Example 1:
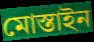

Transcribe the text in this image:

মোস্তাইন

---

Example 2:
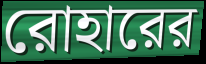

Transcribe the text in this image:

রোহারের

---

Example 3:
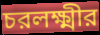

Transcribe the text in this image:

চরলক্ষ্মীর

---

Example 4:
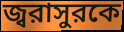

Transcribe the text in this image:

জ্বরাসুরকে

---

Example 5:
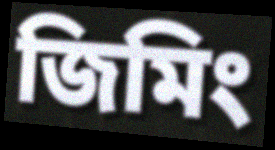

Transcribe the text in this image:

জিমিং